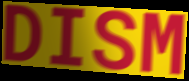
DISM